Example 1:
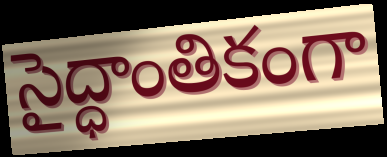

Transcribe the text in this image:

సైద్ధాంతికంగా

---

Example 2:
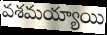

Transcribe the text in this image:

వశమయ్యాయి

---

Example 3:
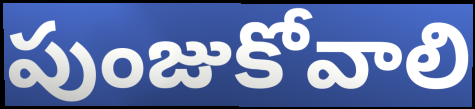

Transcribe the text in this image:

పుంజుకోవాలి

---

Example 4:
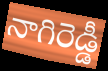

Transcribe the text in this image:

నాగిరెడ్డీ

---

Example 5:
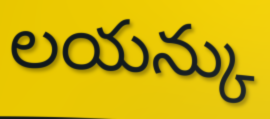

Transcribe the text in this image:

లయన్కు